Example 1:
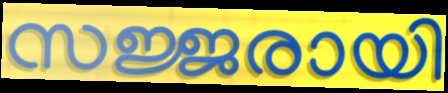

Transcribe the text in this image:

സജ്ജരായി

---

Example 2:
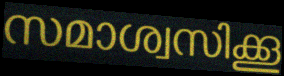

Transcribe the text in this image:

സമാശ്വസിക്കൂ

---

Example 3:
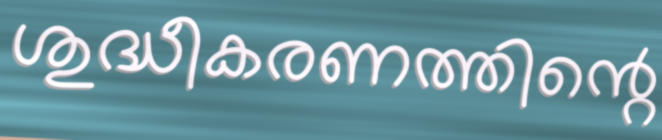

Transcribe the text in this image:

ശുദ്ധീകരണത്തിന്റെ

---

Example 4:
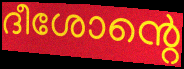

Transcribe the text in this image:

ദീശോന്റെ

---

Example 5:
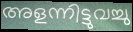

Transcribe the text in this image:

അളന്നിട്ടുവച്ചു